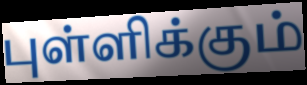
புள்ளிக்கும்